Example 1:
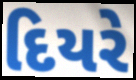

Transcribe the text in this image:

દિયરે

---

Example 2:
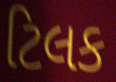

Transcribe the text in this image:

ટિલક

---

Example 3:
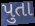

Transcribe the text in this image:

પુતા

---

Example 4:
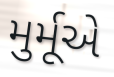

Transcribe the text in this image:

મુર્મૂએ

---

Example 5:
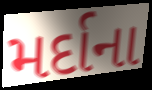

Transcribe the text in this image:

મર્દાના